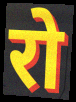
रो